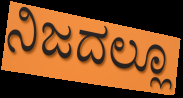
ನಿಜದಲ್ಲೂ